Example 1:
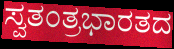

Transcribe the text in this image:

ಸ್ವತಂತ್ರಭಾರತದ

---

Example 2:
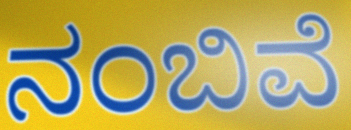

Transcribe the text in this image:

ನಂಬಿವೆ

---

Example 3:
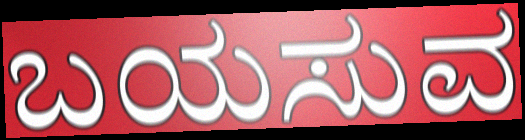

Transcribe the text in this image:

ಬಯಸುವ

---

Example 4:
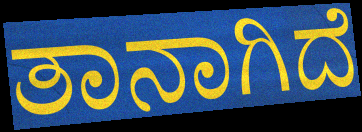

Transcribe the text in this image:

ತಾನಾಗಿದೆ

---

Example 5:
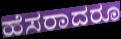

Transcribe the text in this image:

ಹೆಸರಾದರೂ